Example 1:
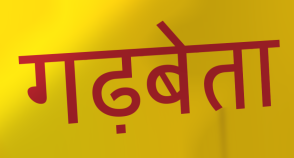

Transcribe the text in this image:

गढ़बेता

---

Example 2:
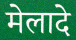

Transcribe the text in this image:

मेलादे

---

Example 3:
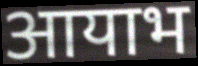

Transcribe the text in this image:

आयाभ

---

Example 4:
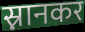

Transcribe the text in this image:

स्नानकर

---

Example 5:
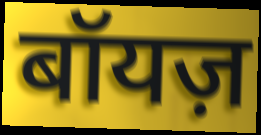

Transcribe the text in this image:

बॉयज़